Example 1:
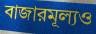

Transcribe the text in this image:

বাজারমূল্যও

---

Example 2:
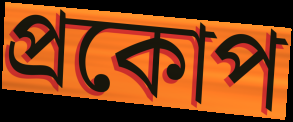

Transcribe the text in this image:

প্রকোপ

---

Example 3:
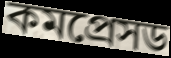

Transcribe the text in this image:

কমপ্রেসড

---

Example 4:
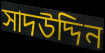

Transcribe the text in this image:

সাদউদ্দিন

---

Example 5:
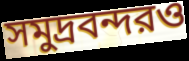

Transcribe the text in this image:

সমুদ্রবন্দরও